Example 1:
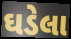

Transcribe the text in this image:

ઘડેલા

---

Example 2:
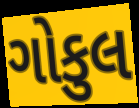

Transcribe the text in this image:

ગોકુલ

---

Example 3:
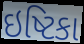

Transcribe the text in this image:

ઇષ્ટિકા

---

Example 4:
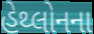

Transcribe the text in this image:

હેથ્લોનના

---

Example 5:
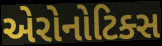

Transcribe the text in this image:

એરોનોટિક્સ